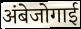
अंबेजोगाई